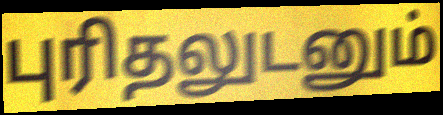
புரிதலுடனும்